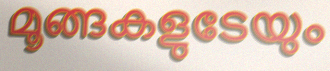
മൂങ്ങകളുടേയും